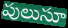
పులుసూ